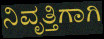
ನಿವೃತ್ತಿಗಾಗಿ